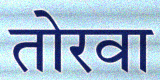
तोरवा